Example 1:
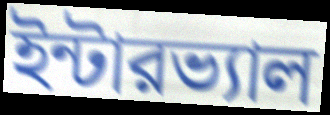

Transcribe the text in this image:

ইন্টারভ্যাল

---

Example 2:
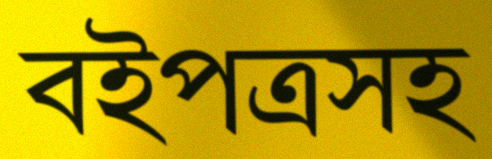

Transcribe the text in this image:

বইপত্রসহ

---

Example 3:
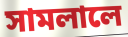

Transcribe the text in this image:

সামলালে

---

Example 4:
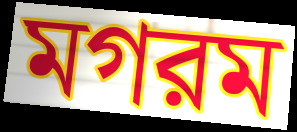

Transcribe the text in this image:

মগরম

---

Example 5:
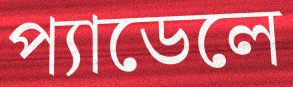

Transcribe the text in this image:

প্যাডেলে